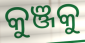
କୁଞ୍ଜକୁ